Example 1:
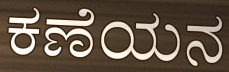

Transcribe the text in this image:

ಕಣೆಯನ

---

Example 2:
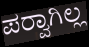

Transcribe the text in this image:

ಪರ‍್ವಾಗಿಲ್ಲ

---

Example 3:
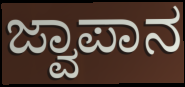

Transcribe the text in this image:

ಜ್ವಾಪಾನ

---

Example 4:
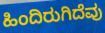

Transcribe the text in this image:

ಹಿಂದಿರುಗಿದೆವು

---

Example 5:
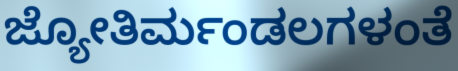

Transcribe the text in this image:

ಜ್ಯೋತಿರ್ಮಂಡಲಗಳಂತೆ